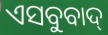
ଏସବୁବାଦ୍